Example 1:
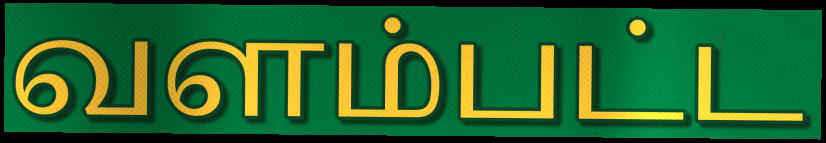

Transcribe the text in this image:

வளம்பட்ட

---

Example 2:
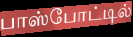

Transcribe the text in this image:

பாஸ்போட்டில்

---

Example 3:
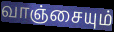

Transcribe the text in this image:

வாஞ்சையும்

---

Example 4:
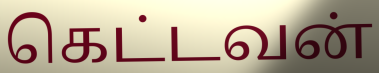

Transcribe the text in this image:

கெட்டவன்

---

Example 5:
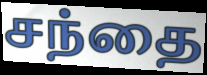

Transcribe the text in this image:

சந்தை